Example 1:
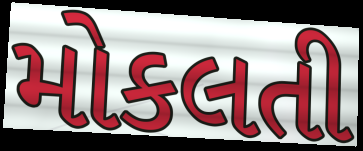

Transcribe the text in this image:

મોકલતી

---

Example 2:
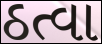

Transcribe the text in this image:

ઠત્વા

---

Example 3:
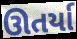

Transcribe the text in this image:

ઊતર્યા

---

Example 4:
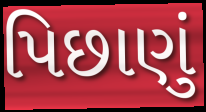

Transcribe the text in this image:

પિછાણું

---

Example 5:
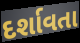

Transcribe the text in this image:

દર્શાવતા